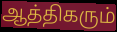
ஆத்திகரும்